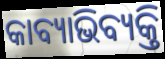
କାବ୍ୟାଭିବ୍ୟକ୍ତି